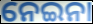
ନେଇନା